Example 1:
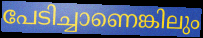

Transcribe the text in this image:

പേടിച്ചാണെങ്കിലും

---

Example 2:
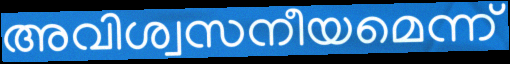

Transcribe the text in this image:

അവിശ്വസനീയമെന്ന്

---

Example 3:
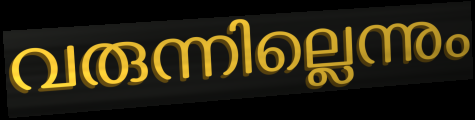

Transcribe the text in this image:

വരുന്നില്ലെന്നും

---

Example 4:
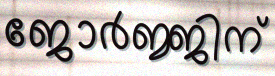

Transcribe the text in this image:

ജോർജ്ജിന്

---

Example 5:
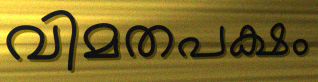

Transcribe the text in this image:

വിമതപക്ഷം